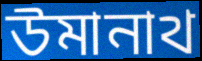
উমানাথ